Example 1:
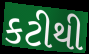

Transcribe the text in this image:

કટીથી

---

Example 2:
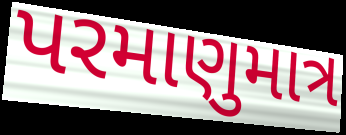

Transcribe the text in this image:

પરમાણુમાત્ર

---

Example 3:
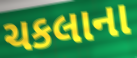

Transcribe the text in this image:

ચકલાના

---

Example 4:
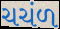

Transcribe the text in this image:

ચચંળ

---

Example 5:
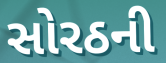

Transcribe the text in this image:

સોરઠની